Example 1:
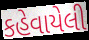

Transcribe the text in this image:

કહેવાયેલી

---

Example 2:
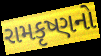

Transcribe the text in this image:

રામકૃષ્ણનો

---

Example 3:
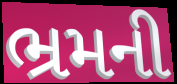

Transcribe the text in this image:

ભ્રમની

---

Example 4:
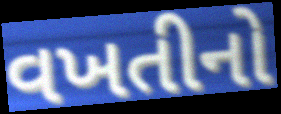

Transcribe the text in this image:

વખતીનો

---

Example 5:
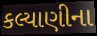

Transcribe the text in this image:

કલ્યાણીના